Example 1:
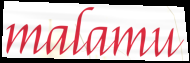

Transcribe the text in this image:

malamu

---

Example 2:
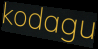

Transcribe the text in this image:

kodagu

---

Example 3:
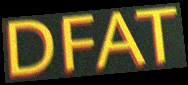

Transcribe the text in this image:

DFAT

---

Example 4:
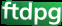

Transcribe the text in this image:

ftdpg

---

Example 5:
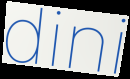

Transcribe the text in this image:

dini